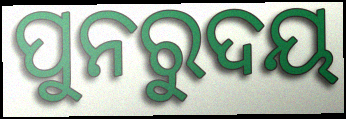
ପୁନରୁଦୟ